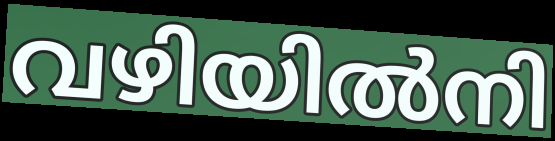
വഴിയിൽനി